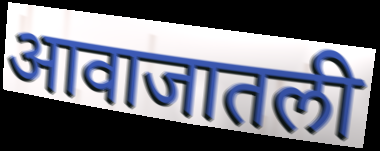
आवाजातली